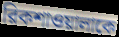
রিকশাওয়ালাকে